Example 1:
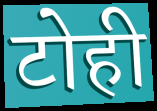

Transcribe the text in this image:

टोही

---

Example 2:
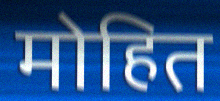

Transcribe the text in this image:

मोहित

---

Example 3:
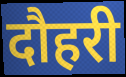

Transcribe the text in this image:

दौहरी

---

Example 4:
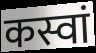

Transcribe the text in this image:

कस्‍वां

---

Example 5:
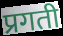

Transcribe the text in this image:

प्रगती